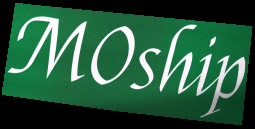
MOship